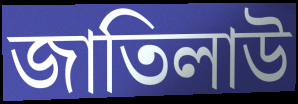
জাতিলাউ